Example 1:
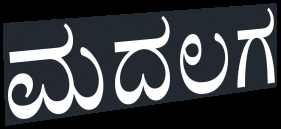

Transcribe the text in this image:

ಮದಲಗ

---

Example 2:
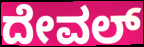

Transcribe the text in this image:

ದೇವಲ್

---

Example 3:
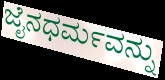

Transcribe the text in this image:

ಜೈನಧರ್ಮವನ್ನು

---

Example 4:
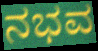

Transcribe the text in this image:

ನಭವ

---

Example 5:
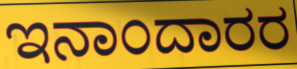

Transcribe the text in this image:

ಇನಾಂದಾರರ